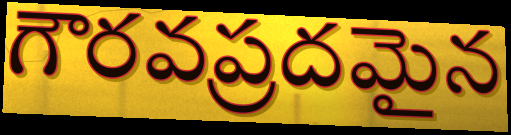
గౌరవప్రదమైన